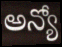
అన్యో